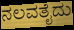
ನಲವತೈದು